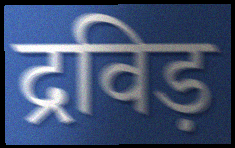
द्रविड़